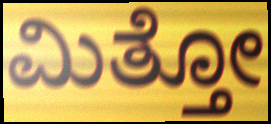
ಮಿತ್ತೋ